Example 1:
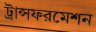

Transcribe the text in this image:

ট্রান্সফরমেশন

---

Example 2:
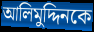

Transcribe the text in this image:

আলিমুদ্দিনকে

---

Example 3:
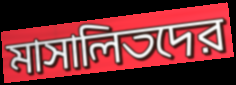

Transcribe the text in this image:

মাসালিতদের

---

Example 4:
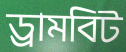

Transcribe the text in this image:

ড্রামবিট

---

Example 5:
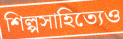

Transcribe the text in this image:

শিল্পসাহিত্যেও